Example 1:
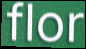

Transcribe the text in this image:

flor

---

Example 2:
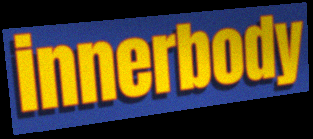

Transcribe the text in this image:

innerbody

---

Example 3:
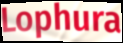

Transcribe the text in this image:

Lophura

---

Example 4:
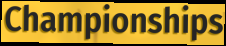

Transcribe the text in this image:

Championships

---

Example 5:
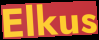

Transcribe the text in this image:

Elkus